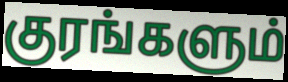
குரங்களும்